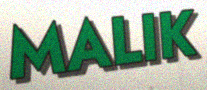
MALIK